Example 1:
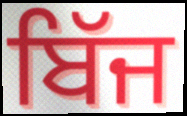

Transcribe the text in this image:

ਬਿੱਜ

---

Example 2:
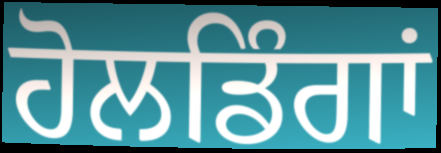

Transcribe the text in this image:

ਹੋਲਡਿੰਗਾਂ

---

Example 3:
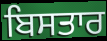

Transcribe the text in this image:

ਬਿਸਤਾਰ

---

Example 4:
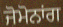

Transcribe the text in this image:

ਜੋਮੋਨਾਂਗ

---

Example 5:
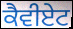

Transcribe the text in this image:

ਕੈਵੀਏਟ